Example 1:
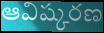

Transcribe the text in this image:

ఆవిష్కరణ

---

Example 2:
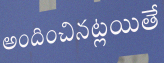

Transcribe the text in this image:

అందించినట్లయితే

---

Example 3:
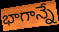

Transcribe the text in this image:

భాగాన్నే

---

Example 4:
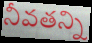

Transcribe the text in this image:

నీవతన్ని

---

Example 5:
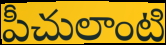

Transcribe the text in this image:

పీచులాంటి